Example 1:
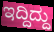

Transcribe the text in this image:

ಇದ್ದಿದ್ದು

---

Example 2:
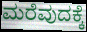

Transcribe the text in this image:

ಮರೆವುದಕ್ಕೆ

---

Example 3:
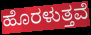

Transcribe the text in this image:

ಹೊರಳುತ್ತವೆ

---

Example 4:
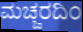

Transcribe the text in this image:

ಮಚ್ಚರದಿಂ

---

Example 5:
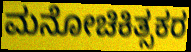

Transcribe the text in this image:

ಮನೋಚಿಕಿತ್ಸಕರ